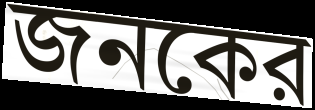
জনকের